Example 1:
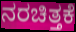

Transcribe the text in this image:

ನರಚಿತ್ತಕೆ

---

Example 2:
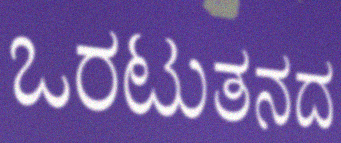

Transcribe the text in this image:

ಒರಟುತನದ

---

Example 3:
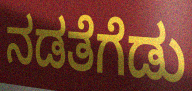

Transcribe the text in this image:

ನಡತೆಗೆಡು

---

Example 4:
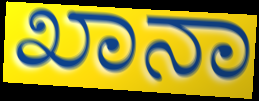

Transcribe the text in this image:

ಖಾನಾ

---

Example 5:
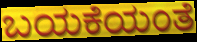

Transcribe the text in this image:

ಬಯಕೆಯಂತೆ